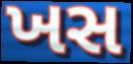
ખસ